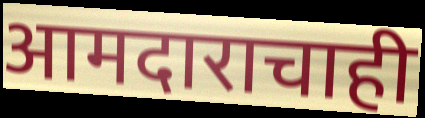
आमदाराचाही